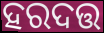
ହରଦତ୍ତ